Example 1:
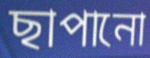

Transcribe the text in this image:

ছাপানো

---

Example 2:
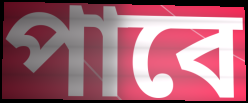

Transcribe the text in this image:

পাবে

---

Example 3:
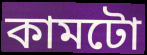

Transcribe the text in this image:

কামটো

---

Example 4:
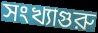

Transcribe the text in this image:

সংখ্যাগুৰু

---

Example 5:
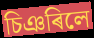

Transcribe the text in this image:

চিঞৰিলে